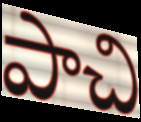
పాచి